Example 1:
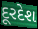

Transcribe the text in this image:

દૂરદેશ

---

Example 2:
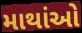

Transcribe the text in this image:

માથાંઓ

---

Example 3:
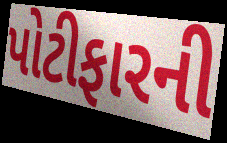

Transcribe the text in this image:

પોટીફારની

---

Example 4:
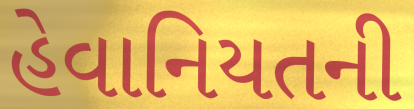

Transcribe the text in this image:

હેવાનિયતની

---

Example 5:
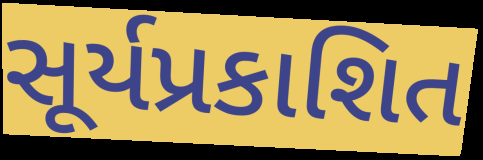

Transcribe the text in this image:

સૂર્યપ્રકાશિત